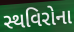
સ્થવિરોના